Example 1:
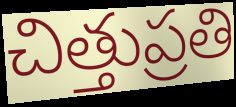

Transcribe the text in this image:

చిత్తుప్రతి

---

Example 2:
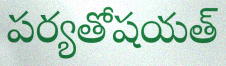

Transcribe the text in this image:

పర్యతోషయత్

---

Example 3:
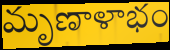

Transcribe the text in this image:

మృణాళాభం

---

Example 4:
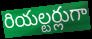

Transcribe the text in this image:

రియల్టర్లుగా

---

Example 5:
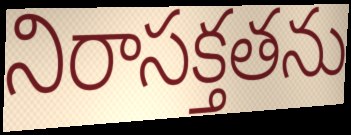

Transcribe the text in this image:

నిరాసక్తతను